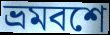
ভ্রমবশে